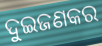
ଦୁଇଜଣକର